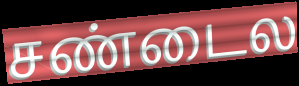
சண்டைல